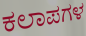
ಕಲಾಪಗಳ